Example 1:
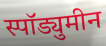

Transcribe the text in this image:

स्पॉड्युमीन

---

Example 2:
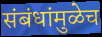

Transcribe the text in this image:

संबंधांमुळेच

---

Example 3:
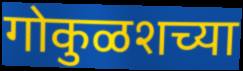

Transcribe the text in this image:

गोकुळशच्या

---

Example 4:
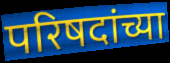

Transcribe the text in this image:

परिषदांच्या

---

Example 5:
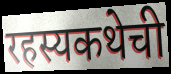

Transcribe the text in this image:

रहस्यकथेची